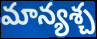
మాన్యశ్చ